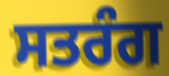
ਸਤਰੰਗ